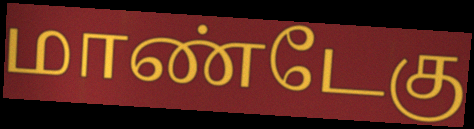
மாண்டேகு